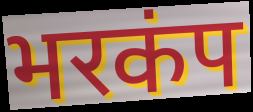
भरकंप